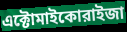
এক্টোমাইকোরাইজা